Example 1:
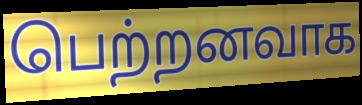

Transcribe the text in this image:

பெற்றனவாக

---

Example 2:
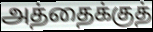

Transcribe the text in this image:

அத்தைக்குத்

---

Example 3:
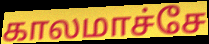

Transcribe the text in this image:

காலமாச்சே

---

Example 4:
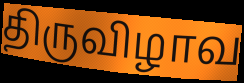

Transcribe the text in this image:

திருவிழாவ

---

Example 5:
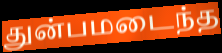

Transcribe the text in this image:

துன்பமடைந்த